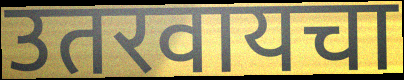
उतरवायचा